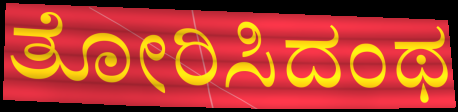
ತೋರಿಸಿದಂಥ